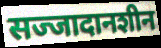
सज्जादानशीन